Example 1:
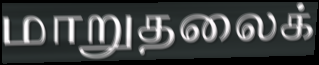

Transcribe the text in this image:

மாறுதலைக்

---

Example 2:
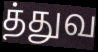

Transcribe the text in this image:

த்துவ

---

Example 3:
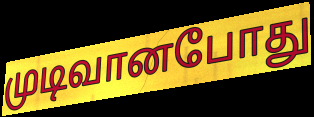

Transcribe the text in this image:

முடிவானபோது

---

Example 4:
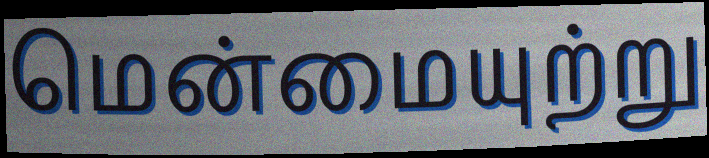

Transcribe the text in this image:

மென்மையுற்று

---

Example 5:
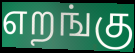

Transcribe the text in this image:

எறங்கு